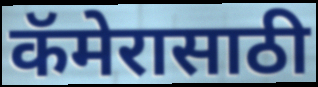
कॅमेरासाठी